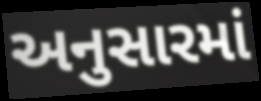
અનુસારમાં